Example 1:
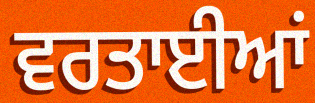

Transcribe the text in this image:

ਵਰਤਾਈਆਂ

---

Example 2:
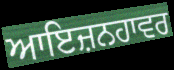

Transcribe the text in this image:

ਆਇਜ਼ਨਹਾਵਰ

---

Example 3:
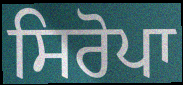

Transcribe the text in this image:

ਸਿਰੋਪਾ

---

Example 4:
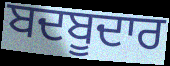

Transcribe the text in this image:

ਬਦਬੂਦਾਰ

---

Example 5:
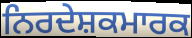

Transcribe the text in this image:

ਨਿਰਦੇਸ਼ਕਮਾਰਕ